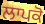
ਲਾਪਕੋ